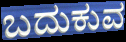
ಬದುಕುವ